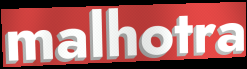
malhotra